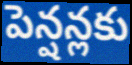
పెన్షన్లకు